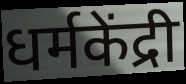
धर्मकेंद्री